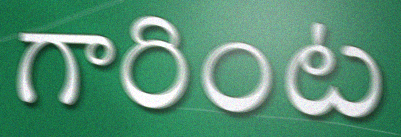
గారింట